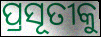
ପ୍ରସୂତୀକୁ